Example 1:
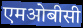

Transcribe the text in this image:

एमओबीसी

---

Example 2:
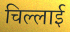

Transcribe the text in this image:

चिल्लाई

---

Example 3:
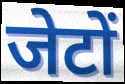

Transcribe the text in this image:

जेटों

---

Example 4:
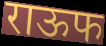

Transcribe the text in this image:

राऊफ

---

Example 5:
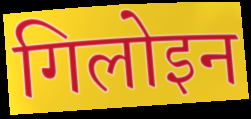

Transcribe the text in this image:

गिलोइन